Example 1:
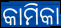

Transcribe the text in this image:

କାମିକା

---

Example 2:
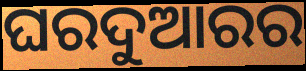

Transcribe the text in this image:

ଘରଦୁଆରର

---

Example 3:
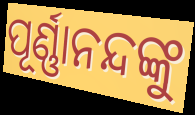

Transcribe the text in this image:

ପୂର୍ଣ୍ଣାନନ୍ଦଙ୍କୁ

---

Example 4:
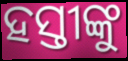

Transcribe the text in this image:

ହସ୍ତୀଙ୍କୁ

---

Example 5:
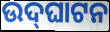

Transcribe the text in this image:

ଉଦ୍‍ଘାଟନ